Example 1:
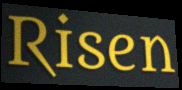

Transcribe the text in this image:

Risen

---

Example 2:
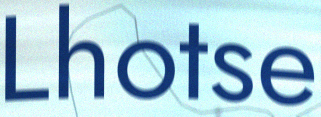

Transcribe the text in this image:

Lhotse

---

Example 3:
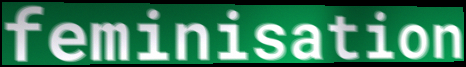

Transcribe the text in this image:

feminisation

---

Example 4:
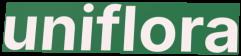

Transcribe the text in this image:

uniflora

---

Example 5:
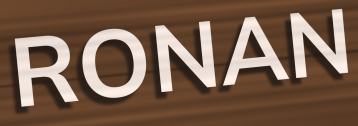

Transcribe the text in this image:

RONAN